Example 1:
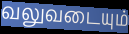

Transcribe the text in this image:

வலுவடையும்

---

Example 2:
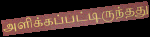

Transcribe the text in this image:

அளிக்கப்பட்டிருந்தது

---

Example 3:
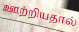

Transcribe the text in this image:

ஊற்றியதால்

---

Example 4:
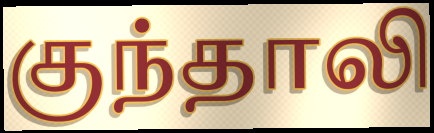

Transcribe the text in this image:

குந்தாலி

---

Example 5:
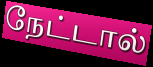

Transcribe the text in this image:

நேட்டால்